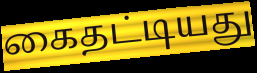
கைதட்டியது